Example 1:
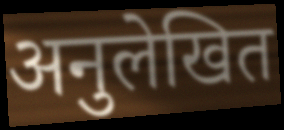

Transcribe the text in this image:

अनुलेखित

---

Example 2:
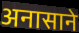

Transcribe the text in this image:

अनासाने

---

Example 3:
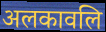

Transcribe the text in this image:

अलकावलि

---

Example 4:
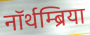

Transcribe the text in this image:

नॉर्थम्ब्रिया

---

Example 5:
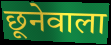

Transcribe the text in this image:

छूनेवाला